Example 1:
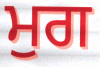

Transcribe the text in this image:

ਮੁਗ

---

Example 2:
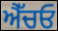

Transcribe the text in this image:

ਐੱਚਓ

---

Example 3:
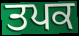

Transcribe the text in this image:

ਤਪਕ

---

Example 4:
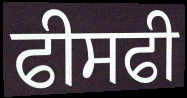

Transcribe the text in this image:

ਫੀਸਫੀ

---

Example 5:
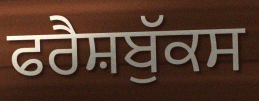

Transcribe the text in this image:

ਫਰੈਸ਼ਬੁੱਕਸ